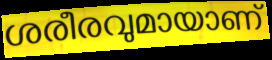
ശരീരവുമായാണ്